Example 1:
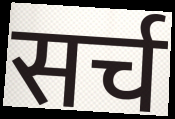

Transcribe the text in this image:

सर्च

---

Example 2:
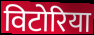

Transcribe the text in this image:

विटोरिया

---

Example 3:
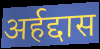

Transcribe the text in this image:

अर्हद्दास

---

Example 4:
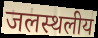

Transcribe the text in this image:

जलस्थलीय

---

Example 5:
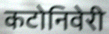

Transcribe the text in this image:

कटोनिवेरी